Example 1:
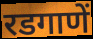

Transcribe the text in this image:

रडगाणें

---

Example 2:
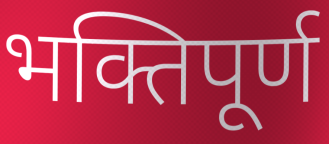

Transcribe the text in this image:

भक्तिपूर्ण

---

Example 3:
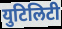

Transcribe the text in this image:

युटिलिटी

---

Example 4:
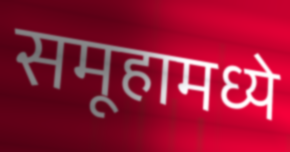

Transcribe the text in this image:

समूहामध्ये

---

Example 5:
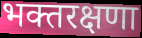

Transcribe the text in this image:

भक्तरक्षणा